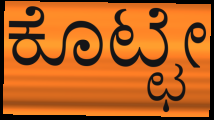
ಕೊಟ್ಟೇ